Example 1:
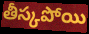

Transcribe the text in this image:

తీస్కపోయి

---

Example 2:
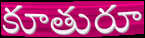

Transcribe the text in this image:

కూతురూ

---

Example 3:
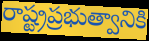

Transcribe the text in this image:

రాష్ట్రప్రభుత్వానికి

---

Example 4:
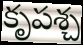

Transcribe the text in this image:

కృపశ్చ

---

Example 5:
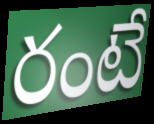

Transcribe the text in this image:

రంటే